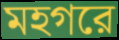
মহগরে